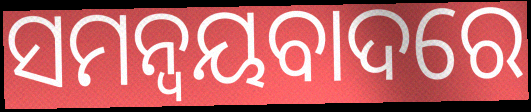
ସମନ୍ୱୟବାଦରେ